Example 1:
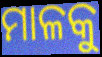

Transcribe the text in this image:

ମାଳକୁ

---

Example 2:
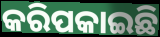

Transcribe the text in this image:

କରିପକାଇଛି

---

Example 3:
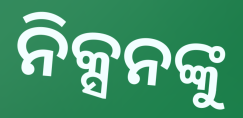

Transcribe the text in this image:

ନିକ୍ସନଙ୍କୁ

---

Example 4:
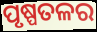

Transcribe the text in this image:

ପୃଷ୍ପତଳର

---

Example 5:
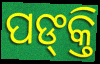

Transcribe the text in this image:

ପଙ୍‍କ୍ତି